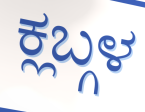
ಕ್ಲಬ್ಗಳ